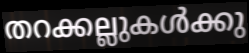
തറക്കല്ലുകൾക്കു